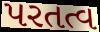
પરતત્વ